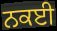
ਨਕਈ